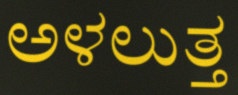
ಅಳಲುತ್ತ